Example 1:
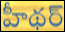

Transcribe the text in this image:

హీథర్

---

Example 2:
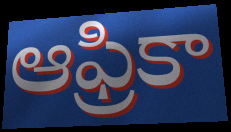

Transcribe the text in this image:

ఆఫ్రికా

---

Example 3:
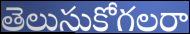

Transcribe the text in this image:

తెలుసుకోగలరా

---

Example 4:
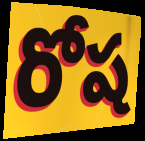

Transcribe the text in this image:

రోష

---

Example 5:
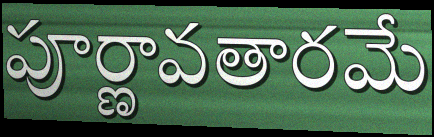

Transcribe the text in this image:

పూర్ణావతారమే